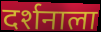
दर्शनाला